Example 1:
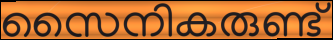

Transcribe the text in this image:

സൈനികരുണ്ട്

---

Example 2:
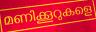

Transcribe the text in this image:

മണിക്കൂറുകളെ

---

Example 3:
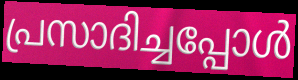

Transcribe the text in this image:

പ്രസാദിച്ചപ്പോൾ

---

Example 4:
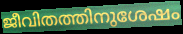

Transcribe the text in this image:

ജീവിതത്തിനുശേഷം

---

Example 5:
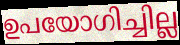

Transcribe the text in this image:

ഉപയോഗിച്ചില്ല